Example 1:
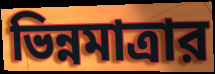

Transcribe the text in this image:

ভিন্নমাত্রার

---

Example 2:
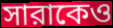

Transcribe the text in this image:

সারাকেও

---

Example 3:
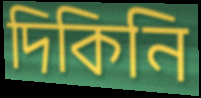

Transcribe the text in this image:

দিকিনি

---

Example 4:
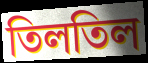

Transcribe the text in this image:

তিলতিল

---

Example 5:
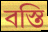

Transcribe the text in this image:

বস্তি